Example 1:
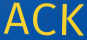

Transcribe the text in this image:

ACK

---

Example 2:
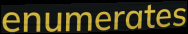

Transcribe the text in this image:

enumerates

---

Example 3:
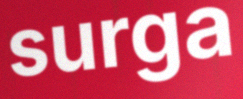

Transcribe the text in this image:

surga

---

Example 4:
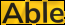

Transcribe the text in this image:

Able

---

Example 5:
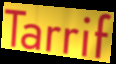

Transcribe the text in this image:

Tarrif